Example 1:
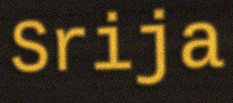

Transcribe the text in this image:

Srija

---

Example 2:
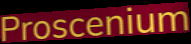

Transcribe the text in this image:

Proscenium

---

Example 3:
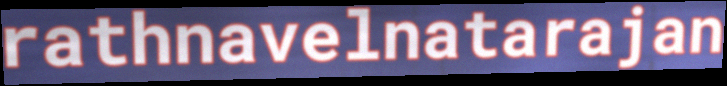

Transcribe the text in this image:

rathnavelnatarajan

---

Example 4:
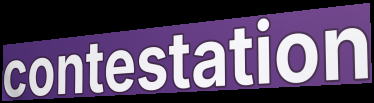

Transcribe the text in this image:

contestation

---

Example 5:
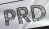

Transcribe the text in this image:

PRD